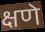
क्षणे